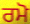
ਰਮੋ